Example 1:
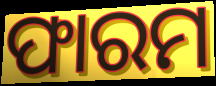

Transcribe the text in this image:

ଫାରମ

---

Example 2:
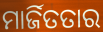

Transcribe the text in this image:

ମାର୍ଜିତତାର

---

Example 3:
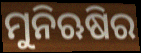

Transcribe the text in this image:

ମୁନିଋଷିର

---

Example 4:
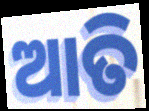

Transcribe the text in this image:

ଆତି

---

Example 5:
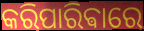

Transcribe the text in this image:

କରିପାରିଵାରେ